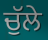
ਚੁੱਲੇ